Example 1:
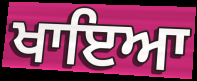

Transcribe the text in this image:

ਖਾਇਆ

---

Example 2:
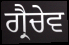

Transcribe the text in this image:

ਗ੍ਰੈਚੇਵ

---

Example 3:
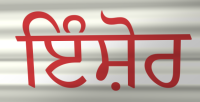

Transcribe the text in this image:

ਇੰਸ਼ੋਰ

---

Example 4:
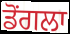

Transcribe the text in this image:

ਡੋਂਗਲਾ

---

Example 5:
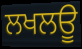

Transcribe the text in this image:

ਲਖਲਊ